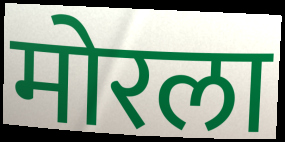
मोरला